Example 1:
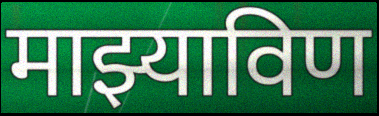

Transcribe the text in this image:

माझ्याविण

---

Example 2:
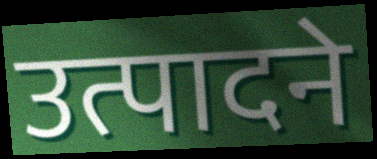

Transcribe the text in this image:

उत्पादने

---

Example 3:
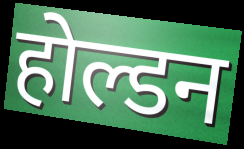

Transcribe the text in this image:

होल्डन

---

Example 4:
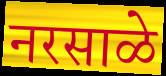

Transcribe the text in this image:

नरसाळे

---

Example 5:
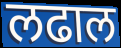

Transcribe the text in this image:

लढाल